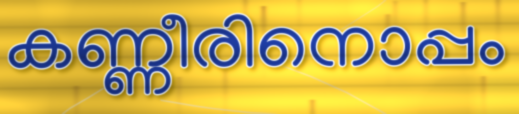
കണ്ണീരിനൊപ്പം